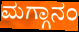
ಮಗ್ಗಾನಂ